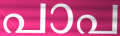
പാപ